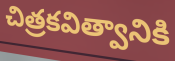
చిత్రకవిత్వానికి